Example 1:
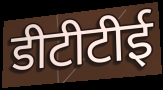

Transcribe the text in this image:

डीटीटीई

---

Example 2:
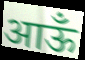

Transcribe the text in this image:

आऊँ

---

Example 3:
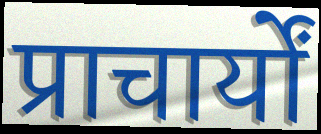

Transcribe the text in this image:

प्राचार्यों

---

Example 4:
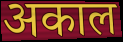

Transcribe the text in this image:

अकाल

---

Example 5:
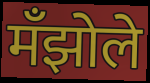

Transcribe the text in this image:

मँझोले